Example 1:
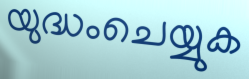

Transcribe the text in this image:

യുദ്ധംചെയ്യുക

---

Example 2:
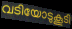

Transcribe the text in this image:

വടിയോടുകൂടി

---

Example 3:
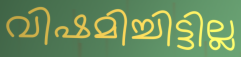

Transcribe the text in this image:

വിഷമിച്ചിട്ടില്ല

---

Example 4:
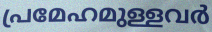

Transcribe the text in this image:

പ്രമേഹമുള്ളവർ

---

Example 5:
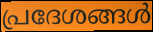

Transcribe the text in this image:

പ്രദേശങ്ങൾ